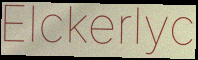
Elckerlyc